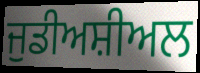
ਜੁਡੀਅਸ਼ੀਅਲ